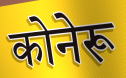
कोनेरू